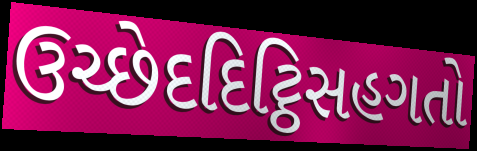
ઉચ્છેદદિટ્ઠિસહગતો